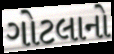
ગોટલાનો